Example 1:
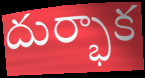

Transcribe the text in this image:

దుర్భాక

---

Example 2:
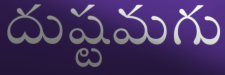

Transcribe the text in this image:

దుష్టమగు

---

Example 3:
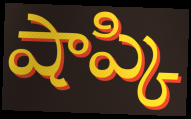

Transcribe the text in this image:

షాప్కి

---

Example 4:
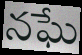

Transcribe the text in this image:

నఘే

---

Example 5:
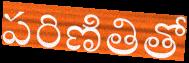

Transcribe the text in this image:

పరిణితితో